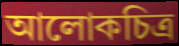
আলোকচিত্র